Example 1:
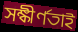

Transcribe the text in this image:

সঙ্কীর্ণতাই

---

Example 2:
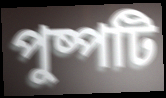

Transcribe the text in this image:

পুষ্পটি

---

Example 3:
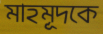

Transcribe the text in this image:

মাহমূদকে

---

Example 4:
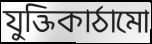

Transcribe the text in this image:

যুক্তিকাঠামো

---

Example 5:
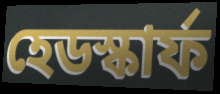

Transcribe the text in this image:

হেডস্কার্ফ